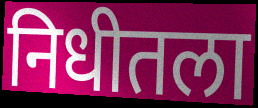
निधीतला